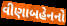
વીણાબહેનનો